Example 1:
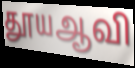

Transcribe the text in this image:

தூயஆவி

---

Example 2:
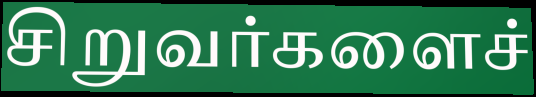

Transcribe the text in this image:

சிறுவர்களைச்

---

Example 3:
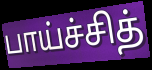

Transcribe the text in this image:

பாய்ச்சித்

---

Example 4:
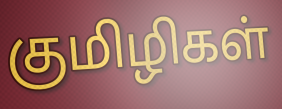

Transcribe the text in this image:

குமிழிகள்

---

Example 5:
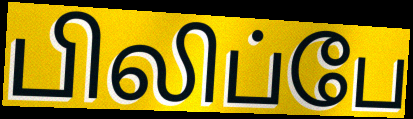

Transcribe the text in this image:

பிலிப்பே